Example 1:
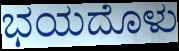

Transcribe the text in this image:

ಭಯದೊಳು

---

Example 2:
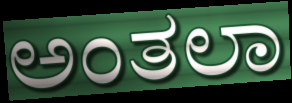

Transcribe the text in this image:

ಅಂತಲಾ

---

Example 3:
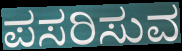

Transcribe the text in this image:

ಪಸರಿಸುವ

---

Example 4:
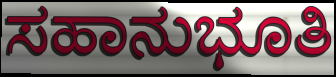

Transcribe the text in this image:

ಸಹಾನುಭೂತಿ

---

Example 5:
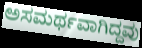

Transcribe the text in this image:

ಅಸಮರ್ಥವಾಗಿದ್ದವು